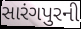
સારંગપુરની